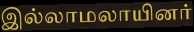
இல்லாமலாயினர்